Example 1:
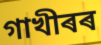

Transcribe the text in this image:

গাখীৰৰ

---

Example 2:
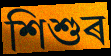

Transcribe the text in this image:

শিশুৰ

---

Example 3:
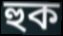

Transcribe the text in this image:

হুক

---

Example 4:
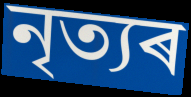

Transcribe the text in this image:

নৃত্যৰ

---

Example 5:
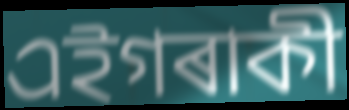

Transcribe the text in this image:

এইগৰাকী